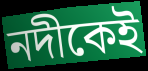
নদীকেই